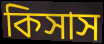
কিসাস